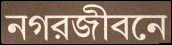
নগরজীবনে